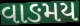
વાઙમય